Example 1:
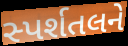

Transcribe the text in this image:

સ્પર્શતલને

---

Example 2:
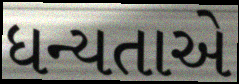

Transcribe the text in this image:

ધન્યતાએ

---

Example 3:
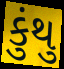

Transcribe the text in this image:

કુંથુ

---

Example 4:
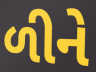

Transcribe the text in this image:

ળીને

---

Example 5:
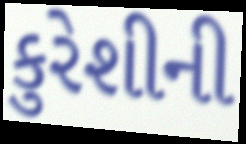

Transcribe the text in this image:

કુરેશીની